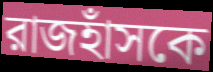
রাজহাঁসকে